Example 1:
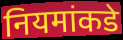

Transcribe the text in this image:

नियमांकडे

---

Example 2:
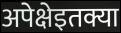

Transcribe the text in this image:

अपेक्षेइतक्या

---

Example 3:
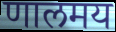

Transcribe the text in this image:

णालमय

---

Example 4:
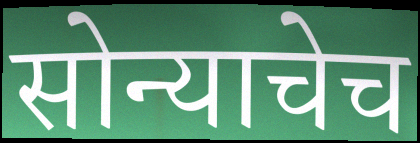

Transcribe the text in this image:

सोन्याचेच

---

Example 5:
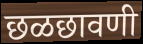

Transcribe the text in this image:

छळछावणी